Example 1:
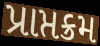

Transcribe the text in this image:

પ્રાપ્તક્રમ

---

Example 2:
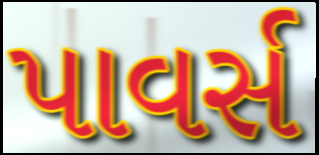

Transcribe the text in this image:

પાવર્સ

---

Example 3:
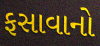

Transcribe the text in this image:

ફસાવાનો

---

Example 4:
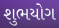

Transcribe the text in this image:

શુભયોગ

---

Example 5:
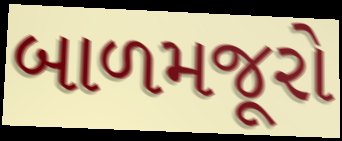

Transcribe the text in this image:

બાળમજૂરો